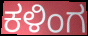
ಕಳಿಂಗ